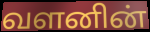
வளனின்